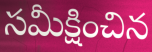
సమీక్షించిన